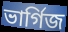
ভাৰ্গিজ